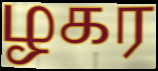
ழகர